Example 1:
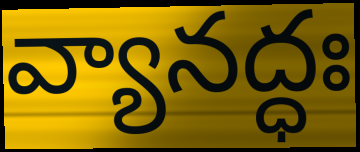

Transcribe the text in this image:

వ్యానద్ధః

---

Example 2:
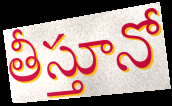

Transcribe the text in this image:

తీస్తూనో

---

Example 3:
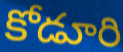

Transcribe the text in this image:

కోడూరి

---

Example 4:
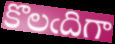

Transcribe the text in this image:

కొలఁదిగా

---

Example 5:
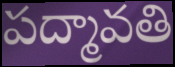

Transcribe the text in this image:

పద్మావతి